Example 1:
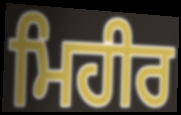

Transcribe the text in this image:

ਮਿਹੀਰ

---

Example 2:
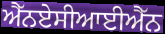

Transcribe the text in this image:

ਐੱਨਏਸੀਆਈਐੱਨ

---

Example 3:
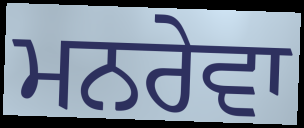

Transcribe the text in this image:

ਮਨਰੇਵਾ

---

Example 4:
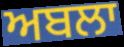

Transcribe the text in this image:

ਅਬਲਾ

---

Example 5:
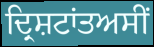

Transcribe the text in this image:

ਦ੍ਰਿਸ਼ਟਾਂਤਅਸੀਂ